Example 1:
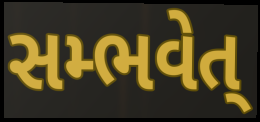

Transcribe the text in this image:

સમ્ભવેત્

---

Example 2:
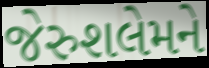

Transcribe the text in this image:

જેરુશલેમને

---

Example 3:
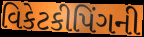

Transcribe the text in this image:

વિકેટકીપિંગની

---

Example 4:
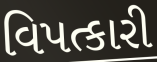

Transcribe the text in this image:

વિપત્કારી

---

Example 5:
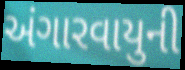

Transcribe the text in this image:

અંગારવાયુની